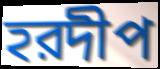
হরদীপ